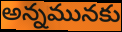
అన్నమునకు